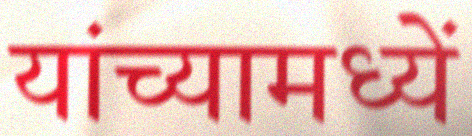
यांच्यामध्यें